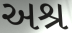
અશ્ર